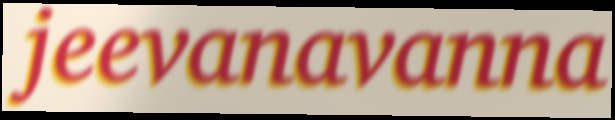
jeevanavanna